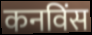
कनविंस